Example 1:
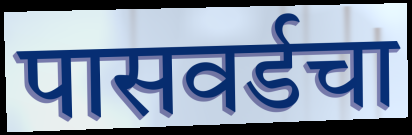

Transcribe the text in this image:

पासवर्डचा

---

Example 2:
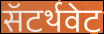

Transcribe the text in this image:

सॅटर्थवेट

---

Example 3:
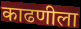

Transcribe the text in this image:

काढणीला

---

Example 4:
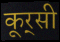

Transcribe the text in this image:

कूर्सी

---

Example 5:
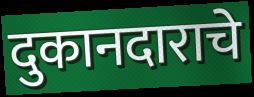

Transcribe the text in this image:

दुकानदाराचे